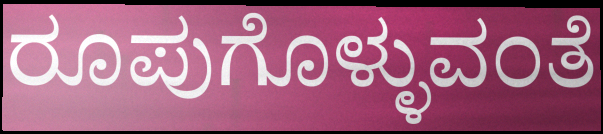
ರೂಪುಗೊಳ್ಳುವಂತೆ